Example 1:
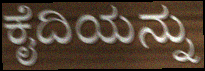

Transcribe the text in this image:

ಕೈದಿಯನ್ನು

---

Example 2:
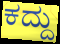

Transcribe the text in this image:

ಕದ್ದು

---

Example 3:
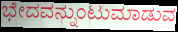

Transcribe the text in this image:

ಭೇದವನ್ನುಂಟುಮಾಡುವ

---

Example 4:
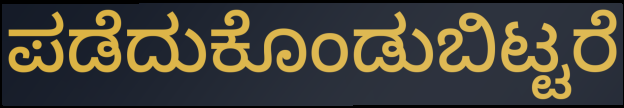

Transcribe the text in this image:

ಪಡೆದುಕೊಂಡುಬಿಟ್ಟರೆ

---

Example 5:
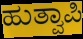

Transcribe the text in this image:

ಹುತ್ವಾಪಿ